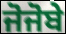
ਜੋਜੋਬੇ